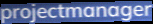
projectmanager